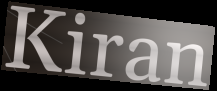
Kiran